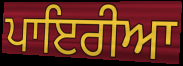
ਪਾਇਰੀਆ